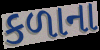
કળાના